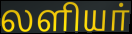
லளியர்